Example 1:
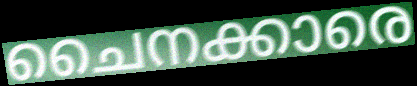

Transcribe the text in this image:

ചൈനക്കാരെ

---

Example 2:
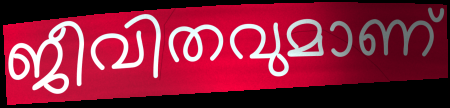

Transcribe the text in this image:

ജീവിതവുമാണ്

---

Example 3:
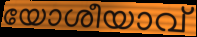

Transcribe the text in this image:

യോശീയാവ്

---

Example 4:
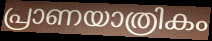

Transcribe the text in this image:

പ്രാണയാത്രികം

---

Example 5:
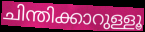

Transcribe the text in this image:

ചിന്തിക്കാറുള്ളൂ